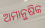
ଅମାନୁଷିକ